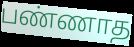
பண்ணாத